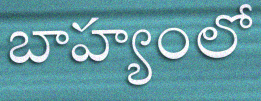
బాహ్యంలో